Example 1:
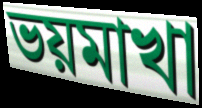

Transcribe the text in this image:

ভয়মাখা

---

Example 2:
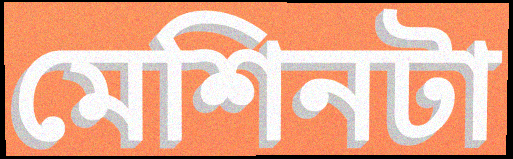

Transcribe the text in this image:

মেশিনটা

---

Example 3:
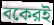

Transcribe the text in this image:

বকেরই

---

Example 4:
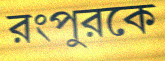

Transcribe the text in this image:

রংপুরকে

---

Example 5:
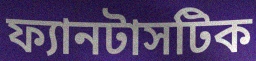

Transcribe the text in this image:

ফ্যানটাসটিক